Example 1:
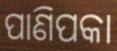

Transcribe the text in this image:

ପାଣିପକା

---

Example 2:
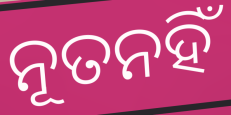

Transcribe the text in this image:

ନୂତନହିଁ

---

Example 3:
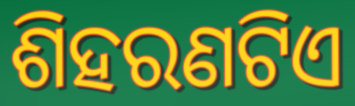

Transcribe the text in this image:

ଶିହରଣଟିଏ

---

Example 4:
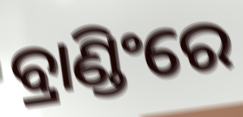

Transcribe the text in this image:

ବ୍ରାଣ୍ଡିଂରେ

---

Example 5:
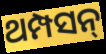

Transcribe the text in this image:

ଥମ୍ପସନ୍